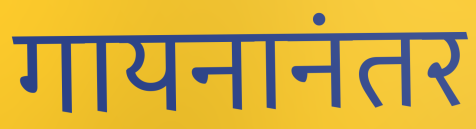
गायनानंतर